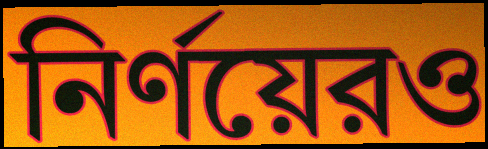
নির্ণয়েরও